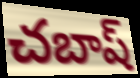
చబాష్